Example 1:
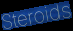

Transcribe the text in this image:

Steroids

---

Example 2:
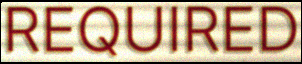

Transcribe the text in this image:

REQUIRED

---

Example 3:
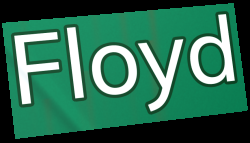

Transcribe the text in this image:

Floyd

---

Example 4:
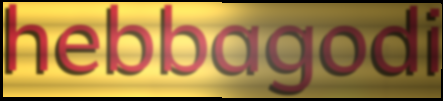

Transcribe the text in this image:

hebbagodi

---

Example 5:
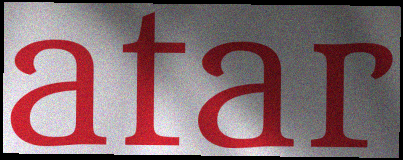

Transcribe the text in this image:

atar